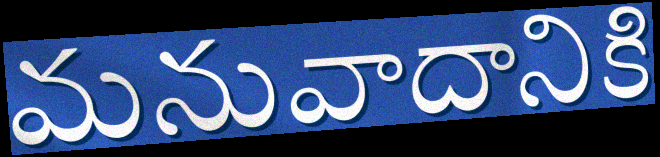
మనువాదానికి